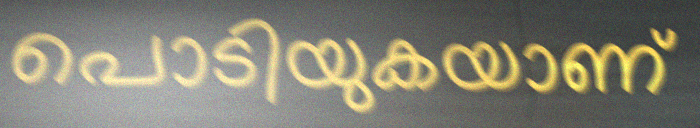
പൊടിയുകയാണ്